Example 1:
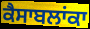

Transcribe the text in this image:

ਕੈਸਾਬਲਾਂਕਾ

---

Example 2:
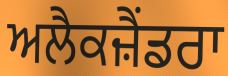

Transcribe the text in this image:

ਅਲੈਕਜ਼ੈਂਡਰਾ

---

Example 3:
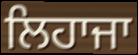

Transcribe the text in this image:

ਲਿਹਾਜਾ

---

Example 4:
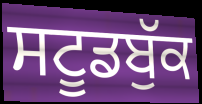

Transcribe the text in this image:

ਸਟੂਡਬੁੱਕ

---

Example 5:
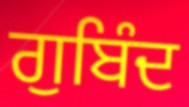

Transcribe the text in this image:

ਗੁਬਿੰਦ